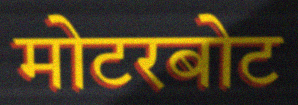
मोटरबोट